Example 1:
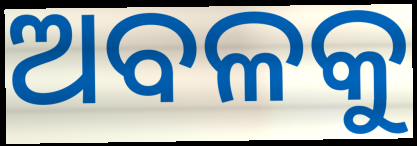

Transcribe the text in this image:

ଅବଳକୁ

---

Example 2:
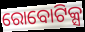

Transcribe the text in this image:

ରୋବୋଟିକ୍ସ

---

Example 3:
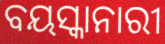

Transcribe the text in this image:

ବୟସ୍କାନାରୀ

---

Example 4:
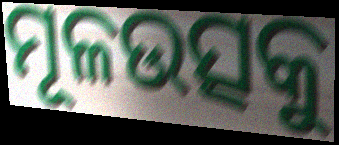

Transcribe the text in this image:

ମୂଳଉତ୍ସକୁ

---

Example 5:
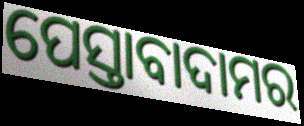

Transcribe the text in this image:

ପେସ୍ତାବାଦାମର